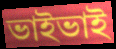
ভাইভাই